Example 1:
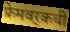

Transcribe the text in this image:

फ्रेमवर्कची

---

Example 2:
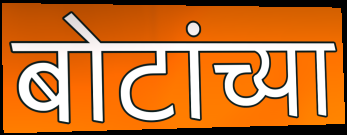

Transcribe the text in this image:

बोटांच्या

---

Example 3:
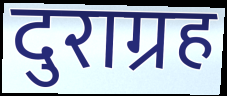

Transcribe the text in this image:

दुराग्रह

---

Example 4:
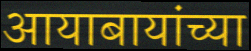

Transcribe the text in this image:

आयाबायांच्या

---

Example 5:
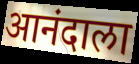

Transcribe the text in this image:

आनंदाला